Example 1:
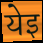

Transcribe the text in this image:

येइ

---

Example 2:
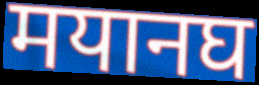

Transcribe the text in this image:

मयानघ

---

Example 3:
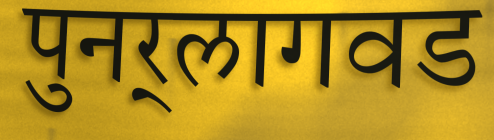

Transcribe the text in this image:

पुनर्लागवड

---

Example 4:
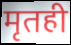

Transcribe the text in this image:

मृतही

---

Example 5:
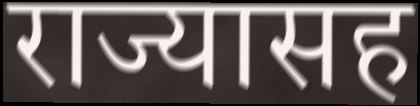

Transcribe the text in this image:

राज्यासह